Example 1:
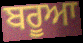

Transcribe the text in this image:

ਬਰੂਆ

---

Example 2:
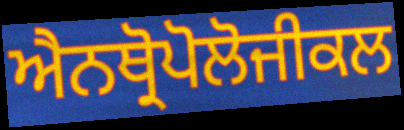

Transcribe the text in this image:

ਐਨਥ੍ਰੋਪੋਲੋਜੀਕਲ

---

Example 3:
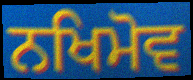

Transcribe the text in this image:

ਨਖਿਮੋਵ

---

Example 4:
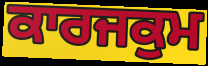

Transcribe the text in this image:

ਕਾਰਜਕੁਮ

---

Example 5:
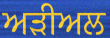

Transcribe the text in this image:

ਅੜੀਅਲ